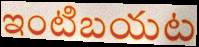
ఇంటిబయట